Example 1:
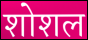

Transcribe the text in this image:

शोशल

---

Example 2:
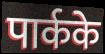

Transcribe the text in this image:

पार्कके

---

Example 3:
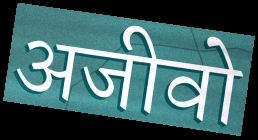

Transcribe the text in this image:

अजीवो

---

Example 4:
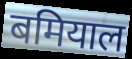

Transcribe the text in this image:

बमियाल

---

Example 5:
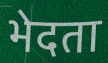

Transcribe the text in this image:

भेदता